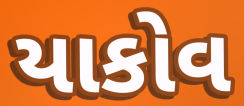
યાકોવ